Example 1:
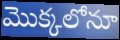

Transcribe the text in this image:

మొక్కలోనూ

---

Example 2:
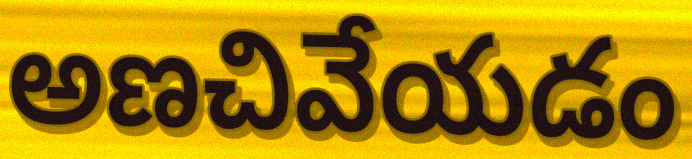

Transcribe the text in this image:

అణచివేయడం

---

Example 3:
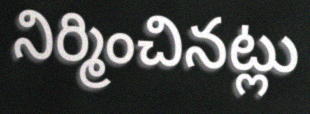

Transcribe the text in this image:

నిర్మించినట్లు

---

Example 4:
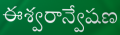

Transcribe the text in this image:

ఈశ్వరాన్వేషణ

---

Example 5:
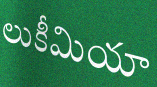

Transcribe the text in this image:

లుకీమియా